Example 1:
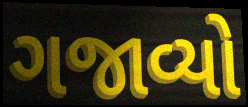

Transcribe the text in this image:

ગજાવ્યો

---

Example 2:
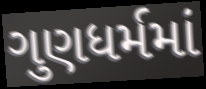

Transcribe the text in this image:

ગુણધર્મમાં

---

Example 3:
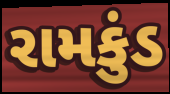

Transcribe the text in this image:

રામકુંડ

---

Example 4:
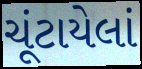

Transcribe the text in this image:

ચૂંટાયેલાં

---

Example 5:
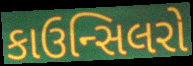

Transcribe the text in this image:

કાઉન્સિલરો